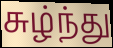
சுழ்ந்து